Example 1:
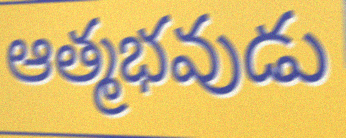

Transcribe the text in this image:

ఆత్మభవుడు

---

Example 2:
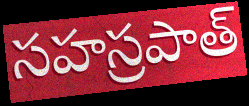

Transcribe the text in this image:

సహస్రపాత్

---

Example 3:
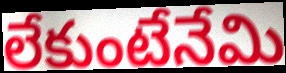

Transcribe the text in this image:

లేకుంటేనేమి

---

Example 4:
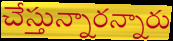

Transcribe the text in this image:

చేస్తున్నారన్నారు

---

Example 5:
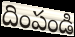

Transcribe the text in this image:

దింపండి